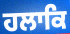
ਹਲਾਕਿ